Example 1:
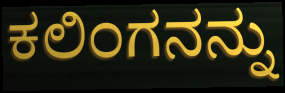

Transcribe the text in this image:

ಕಲಿಂಗನನ್ನು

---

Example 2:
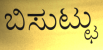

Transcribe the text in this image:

ಬಿಸುಟ್ಟು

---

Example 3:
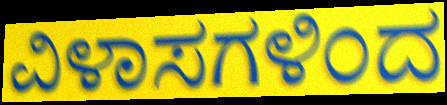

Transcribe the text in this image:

ವಿಳಾಸಗಳಿಂದ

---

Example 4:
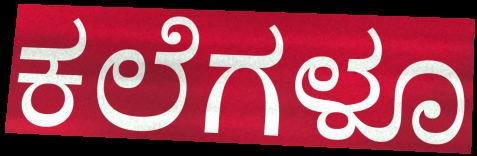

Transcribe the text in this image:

ಕಲೆಗಳೂ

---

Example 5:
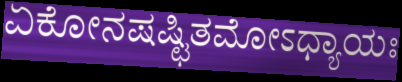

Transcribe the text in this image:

ಏಕೋನಷಷ್ಟಿತಮೋಽಧ್ಯಾಯಃ